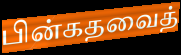
பின்கதவைத்